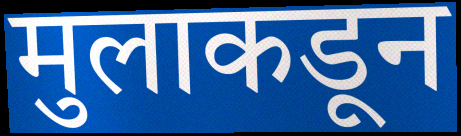
मुलाकडून